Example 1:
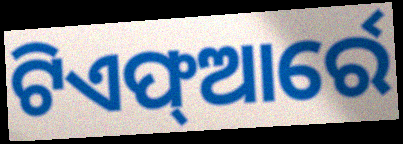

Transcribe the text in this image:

ଟିଏଫ୍ଆର୍ରେ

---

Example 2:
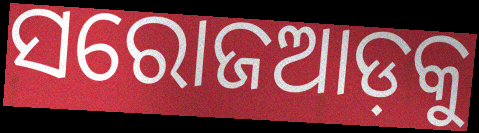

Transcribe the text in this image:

ସରୋଜଆଡ଼କୁ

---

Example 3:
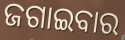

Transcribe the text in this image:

ଜଗାଇବାର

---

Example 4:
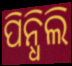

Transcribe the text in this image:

ପିନ୍ଧିଲି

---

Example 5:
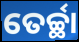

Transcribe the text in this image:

ତେର୍ଚ୍ଛା